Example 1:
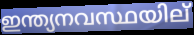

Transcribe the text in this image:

ഇന്ത്യനവസ്ഥയില്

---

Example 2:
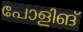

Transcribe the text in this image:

പോളിങ്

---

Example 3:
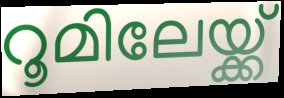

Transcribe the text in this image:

റൂമിലേയ്ക്ക്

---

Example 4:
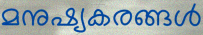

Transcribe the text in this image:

മനുഷ്യകരങ്ങൾ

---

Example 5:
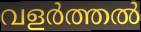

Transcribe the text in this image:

വളർത്തൽ